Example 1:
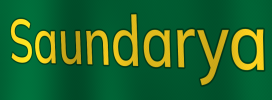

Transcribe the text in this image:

Saundarya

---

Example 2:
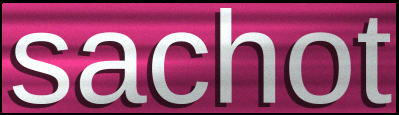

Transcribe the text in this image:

sachot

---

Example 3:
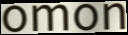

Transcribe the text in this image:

omon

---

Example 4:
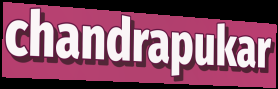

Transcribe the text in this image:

chandrapukar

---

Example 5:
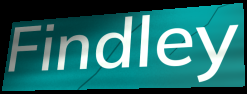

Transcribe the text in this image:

Findley